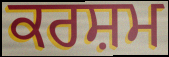
ਕਰਸ਼ਮ